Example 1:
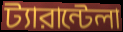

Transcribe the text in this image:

ট্যারান্টেলা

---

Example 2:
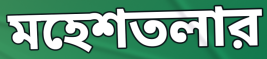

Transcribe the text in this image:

মহেশতলার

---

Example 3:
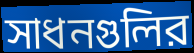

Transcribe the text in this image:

সাধনগুলির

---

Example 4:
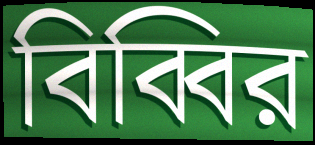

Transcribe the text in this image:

বিব্বির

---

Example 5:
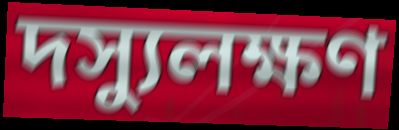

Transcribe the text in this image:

দস্যুলক্ষণ